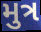
મુત્ર